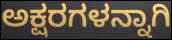
ಅಕ್ಷರಗಳನ್ನಾಗಿ